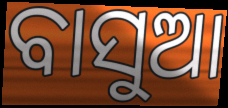
ବାସୁଆ